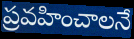
ప్రవహించాలనే